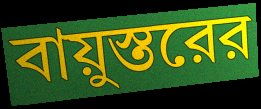
বায়ুস্তরের